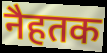
नैहतक